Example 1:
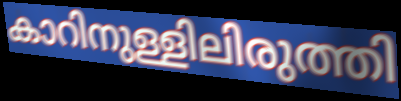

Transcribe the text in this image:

കാറിനുള്ളിലിരുത്തി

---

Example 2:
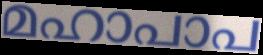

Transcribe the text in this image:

മഹാപാപ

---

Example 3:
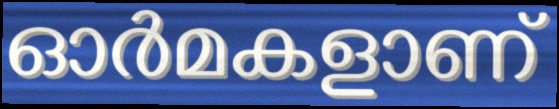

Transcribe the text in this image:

ഓർമകളാണ്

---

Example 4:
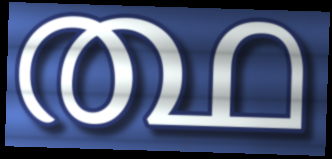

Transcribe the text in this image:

ത്ഥ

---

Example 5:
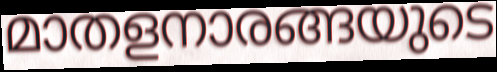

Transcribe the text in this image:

മാതളനാരങ്ങയുടെ